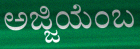
ಅಜ್ಜಿಯೆಂಬ